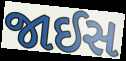
જાઈસ